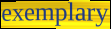
exemplary